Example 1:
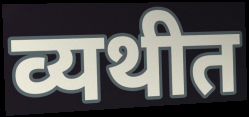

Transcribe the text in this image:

व्यथीत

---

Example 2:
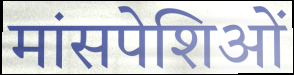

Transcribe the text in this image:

मांसपेशिओं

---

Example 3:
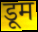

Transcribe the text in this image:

डूम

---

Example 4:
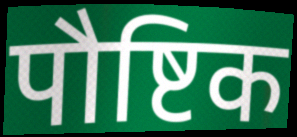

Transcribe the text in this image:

पौष्टिक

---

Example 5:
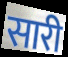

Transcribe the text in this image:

सारी